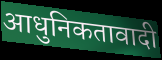
आधुनिकतावादी